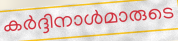
കർദ്ദിനാൾമാരുടെ